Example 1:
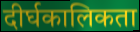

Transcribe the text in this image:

दीर्घकालिकता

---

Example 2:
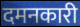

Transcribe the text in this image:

दमनकारी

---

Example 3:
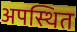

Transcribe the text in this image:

अपस्थित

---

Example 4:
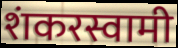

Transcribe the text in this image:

शंकरस्वामी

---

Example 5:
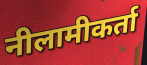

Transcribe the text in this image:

नीलामीकर्ता